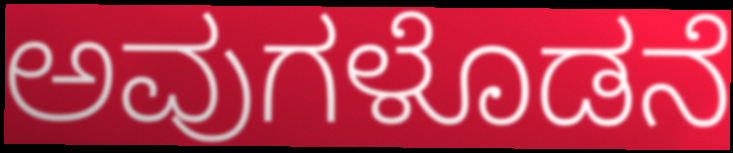
ಅವುಗಳೊಡನೆ